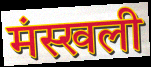
मंस्खली